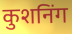
कुशनिंग